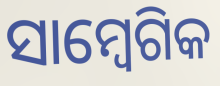
ସାମ୍ବେଗିକ